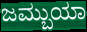
ಜಮ್ಬುಯಾ